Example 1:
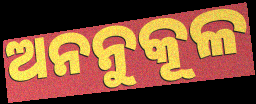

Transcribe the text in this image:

ଅନନୁକୂଳ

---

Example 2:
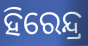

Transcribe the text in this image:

ହିରେନ୍ଦ୍ର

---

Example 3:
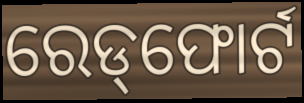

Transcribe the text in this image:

ରେଡ୍‌ଫୋର୍ଟ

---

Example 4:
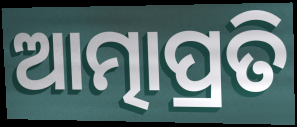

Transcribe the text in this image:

ଆତ୍ମାପ୍ରତି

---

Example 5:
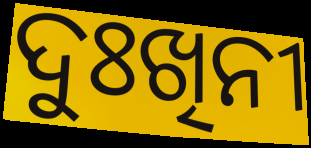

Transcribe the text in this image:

ଦୁଃଖିନୀ